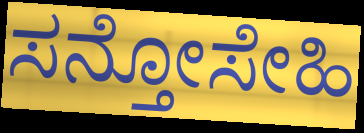
ಸನ್ತೋಸೇಹಿ